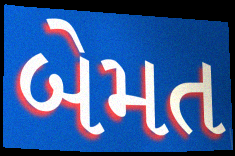
બેમત